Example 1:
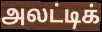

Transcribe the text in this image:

அலட்டிக்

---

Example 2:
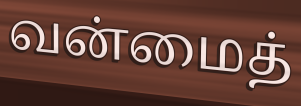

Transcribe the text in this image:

வன்மைத்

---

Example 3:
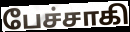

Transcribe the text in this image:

பேச்சாகி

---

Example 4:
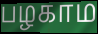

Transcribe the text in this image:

பழகாம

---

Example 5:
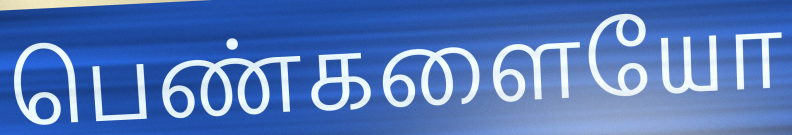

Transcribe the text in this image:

பெண்களையோ